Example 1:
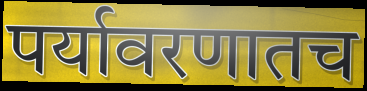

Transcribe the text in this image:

पर्यावरणातच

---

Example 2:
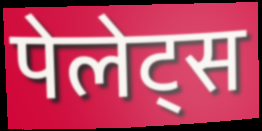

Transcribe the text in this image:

पेलेट्स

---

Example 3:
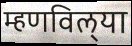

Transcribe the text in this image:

म्हणविल्या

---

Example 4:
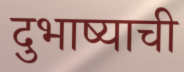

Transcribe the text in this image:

दुभाष्याची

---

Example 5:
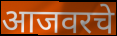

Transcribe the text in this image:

आजवरचे